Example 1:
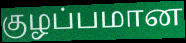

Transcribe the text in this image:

குழப்பமான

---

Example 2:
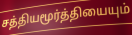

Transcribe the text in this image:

சத்தியமூர்த்தியையும்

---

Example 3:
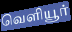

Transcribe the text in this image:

வெளியூர்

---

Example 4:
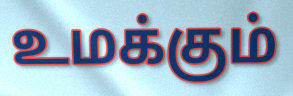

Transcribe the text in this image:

உமக்கும்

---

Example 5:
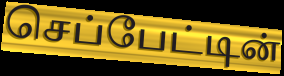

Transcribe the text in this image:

செப்பேட்டின்